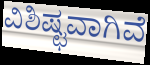
ವಿಶಿಷ್ಟವಾಗಿವೆ